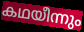
കഥയീന്നും